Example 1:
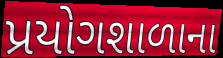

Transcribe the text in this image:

પ્રયોગશાળાના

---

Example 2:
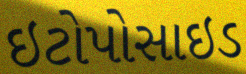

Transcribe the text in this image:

ઇટોપોસાઇડ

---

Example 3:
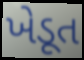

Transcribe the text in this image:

ખેડૂત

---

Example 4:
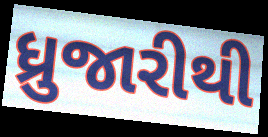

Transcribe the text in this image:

ધ્રુજારીથી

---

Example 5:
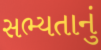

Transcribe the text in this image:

સભ્યતાનું